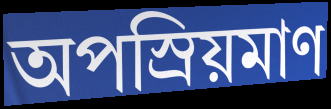
অপস্রিয়মাণ